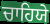
ਚਾਹਿਯੇ